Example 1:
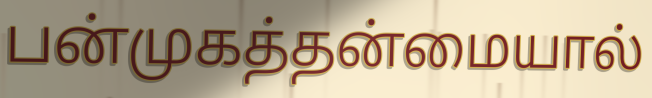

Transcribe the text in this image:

பன்முகத்தன்மையால்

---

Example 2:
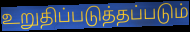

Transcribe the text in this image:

உறுதிப்படுத்தப்படும்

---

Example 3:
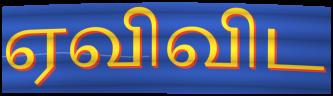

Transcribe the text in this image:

ஏவிவிட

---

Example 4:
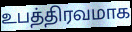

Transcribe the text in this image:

உபத்திரவமாக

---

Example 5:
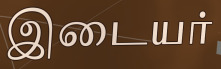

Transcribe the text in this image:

இடையர்